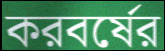
করবর্ষের